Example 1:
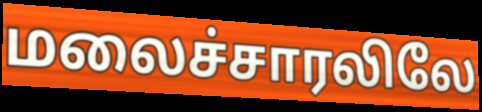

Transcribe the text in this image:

மலைச்சாரலிலே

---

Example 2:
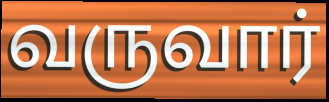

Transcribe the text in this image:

வருவார்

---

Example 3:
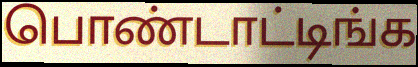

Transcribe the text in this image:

பொண்டாட்டிங்க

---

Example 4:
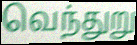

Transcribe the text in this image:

வெந்துறு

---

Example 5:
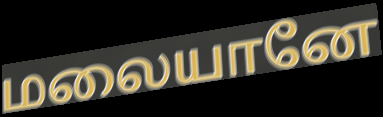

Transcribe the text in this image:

மலையானே